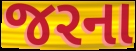
જરના